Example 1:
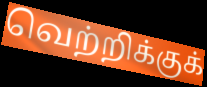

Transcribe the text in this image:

வெற்றிக்குக்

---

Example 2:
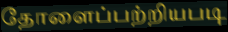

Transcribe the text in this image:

தோளைப்பற்றியபடி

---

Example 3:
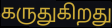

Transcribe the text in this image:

கருதுகிறது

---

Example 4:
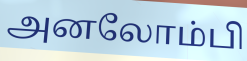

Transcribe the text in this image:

அனலோம்பி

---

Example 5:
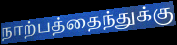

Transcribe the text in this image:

நாற்பத்தைந்துக்கு